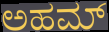
ಅಹಮ್